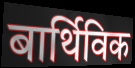
बार्थिविक